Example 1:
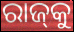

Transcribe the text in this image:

ରାଜ୍‍କୁ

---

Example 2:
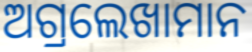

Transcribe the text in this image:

ଅଗ୍ରଲେଖାମାନ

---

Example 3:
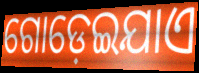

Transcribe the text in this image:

ଗୋଡ଼େଇଯାଏ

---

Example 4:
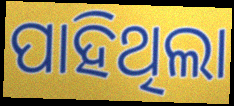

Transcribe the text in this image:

ପାହିଥିଲା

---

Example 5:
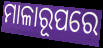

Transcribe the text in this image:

ମାଳାରୂପରେ